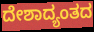
ದೇಶಾದ್ಯಂತದ